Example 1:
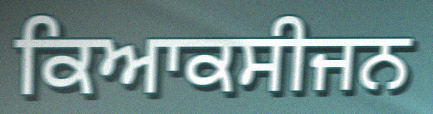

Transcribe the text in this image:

ਕਿਆਕਸੀਜਨ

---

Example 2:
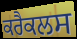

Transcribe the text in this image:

ਕਰੈਕਲਸ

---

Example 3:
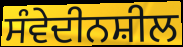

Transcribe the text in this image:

ਸੰਵੇਦੀਨਸ਼ੀਲ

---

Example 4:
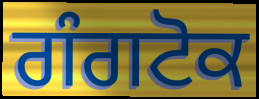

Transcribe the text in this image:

ਗੰਗਟੋਕ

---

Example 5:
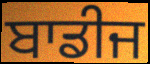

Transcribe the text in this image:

ਬਾਡੀਜ